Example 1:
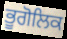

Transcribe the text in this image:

ਭੂਗੋਲਿਕ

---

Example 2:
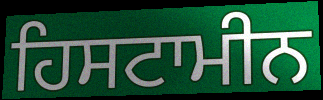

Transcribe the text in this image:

ਹਿਸਟਾਮੀਨ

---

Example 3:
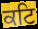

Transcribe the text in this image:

ਕਟਿ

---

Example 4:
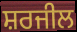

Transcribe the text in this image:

ਸ਼ਰਜੀਲ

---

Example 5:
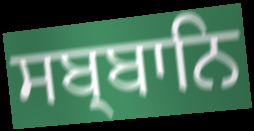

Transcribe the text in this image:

ਸਬ੍ਬਾਨਿ